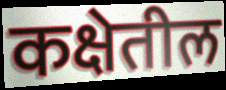
कक्षेतील